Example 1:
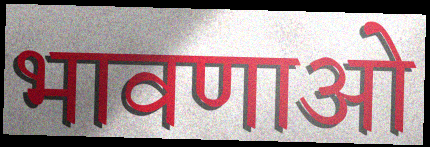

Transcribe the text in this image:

भावणाओ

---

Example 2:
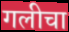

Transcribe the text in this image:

गलीचा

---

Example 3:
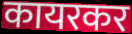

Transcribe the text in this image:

कायरकर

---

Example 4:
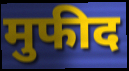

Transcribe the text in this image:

मुफीद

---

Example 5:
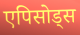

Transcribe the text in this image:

एपिसोड्स